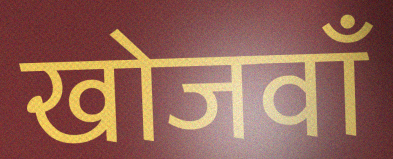
खोजवाँ